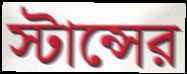
স্টান্সের